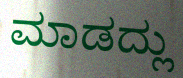
ಮಾಡದ್ಲು